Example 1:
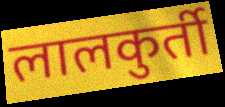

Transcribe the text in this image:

लालकुर्ती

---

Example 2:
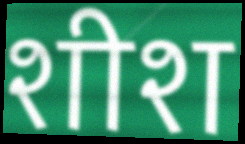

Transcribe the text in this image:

शीश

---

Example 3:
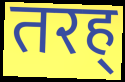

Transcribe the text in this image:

तरह्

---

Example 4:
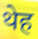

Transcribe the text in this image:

थेह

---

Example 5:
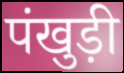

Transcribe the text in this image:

पंखुड़ी